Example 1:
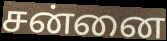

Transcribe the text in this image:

சன்னை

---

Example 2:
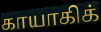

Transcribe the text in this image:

காயாகிக்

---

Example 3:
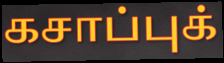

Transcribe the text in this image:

கசாப்புக்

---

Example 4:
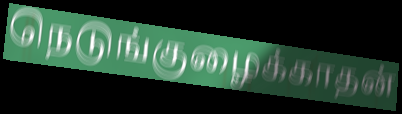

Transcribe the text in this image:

நெடுங்குழைக்காதன்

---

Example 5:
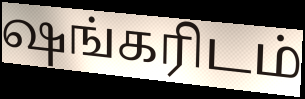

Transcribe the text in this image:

ஷங்கரிடம்